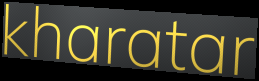
kharatar